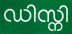
ഡിസ്നി